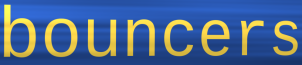
bouncers